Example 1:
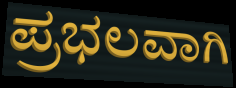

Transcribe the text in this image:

ಪ್ರಭಲವಾಗಿ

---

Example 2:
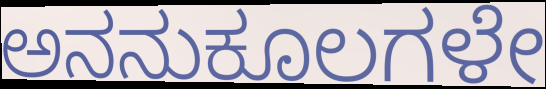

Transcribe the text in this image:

ಅನನುಕೂಲಗಳೇ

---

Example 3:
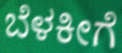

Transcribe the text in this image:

ಬೆಳಕೀಗೆ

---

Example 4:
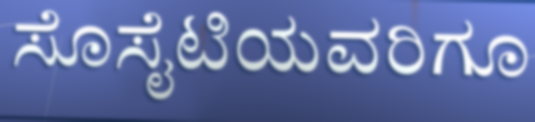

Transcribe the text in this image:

ಸೊಸೈಟಿಯವರಿಗೂ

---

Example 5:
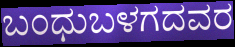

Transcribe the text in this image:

ಬಂಧುಬಳಗದವರ